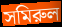
সমিরুল